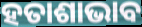
ହତାଶାଭାବ